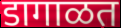
डागाळत